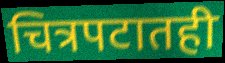
चित्रपटातही